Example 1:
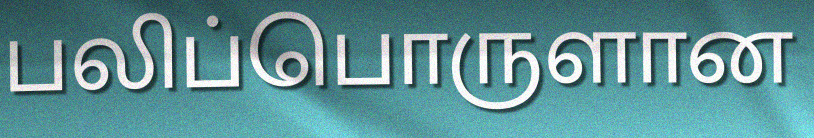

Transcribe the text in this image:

பலிப்பொருளான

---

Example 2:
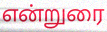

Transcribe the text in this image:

என்றுரை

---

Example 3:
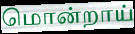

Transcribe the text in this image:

மொன்றாய்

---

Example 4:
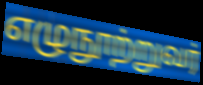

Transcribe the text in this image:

எழுநூற்றுவர்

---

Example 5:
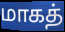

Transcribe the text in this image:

மாகத்